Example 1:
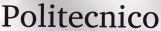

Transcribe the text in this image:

Politecnico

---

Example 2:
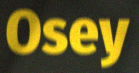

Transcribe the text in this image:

Osey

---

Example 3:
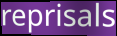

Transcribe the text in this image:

reprisals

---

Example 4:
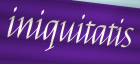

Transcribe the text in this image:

iniquitatis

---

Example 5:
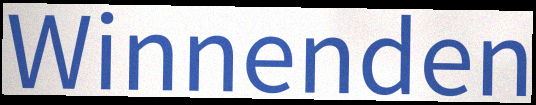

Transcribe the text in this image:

Winnenden